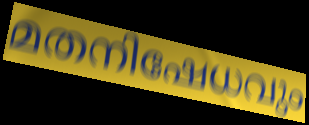
മതനിഷേധവും